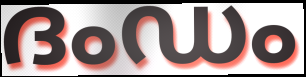
ദംഡം